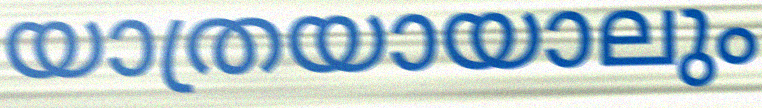
യാത്രയായാലും